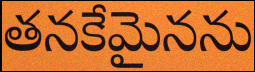
తనకేమైనను